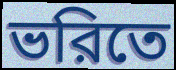
ভরিতে